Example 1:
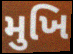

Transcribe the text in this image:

મુખિ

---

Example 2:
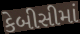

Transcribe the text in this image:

કેબીસીમાં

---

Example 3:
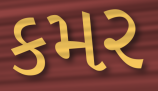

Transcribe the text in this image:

કમર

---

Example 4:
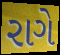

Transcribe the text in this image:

રાગે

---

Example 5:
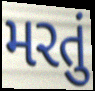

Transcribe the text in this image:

મરતું